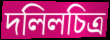
দলিলচিত্র